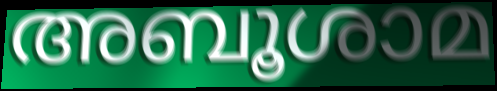
അബൂശാമ